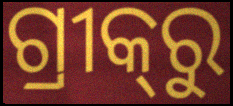
ଗ୍ରୀକ୍‌ରୁ